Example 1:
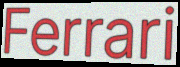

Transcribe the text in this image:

Ferrari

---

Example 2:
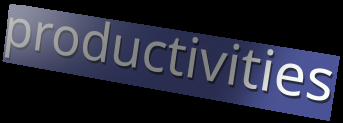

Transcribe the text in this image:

productivities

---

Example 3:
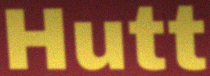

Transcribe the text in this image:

Hutt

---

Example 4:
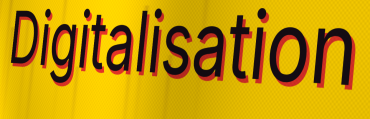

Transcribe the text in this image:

Digitalisation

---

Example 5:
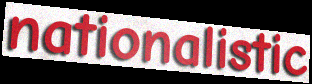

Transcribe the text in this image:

nationalistic